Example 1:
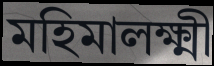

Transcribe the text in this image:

মহিমালক্ষ্মী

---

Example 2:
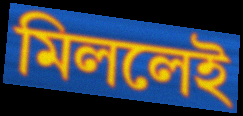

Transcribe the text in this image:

মিললেই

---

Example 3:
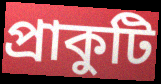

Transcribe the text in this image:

প্রাকুটি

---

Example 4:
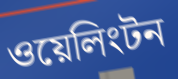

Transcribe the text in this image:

ওয়েলিংটন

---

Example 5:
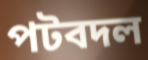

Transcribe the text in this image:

পটবদল